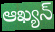
ఆఖ్యన్